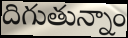
దిగుతున్నాం